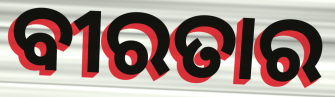
ବୀରତାର